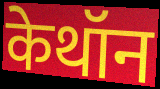
केथॉन